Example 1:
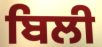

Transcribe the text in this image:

ਬਿਲੀ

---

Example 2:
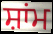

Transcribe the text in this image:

ਸ਼ਾਂਮ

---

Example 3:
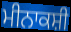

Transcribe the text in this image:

ਮੀਨਾਕਸ਼ੀ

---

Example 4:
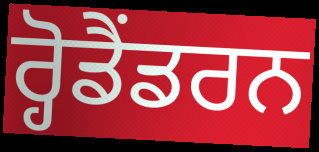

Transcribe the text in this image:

ਰ੍ਹੋਡੈਂਡਰਨ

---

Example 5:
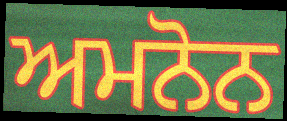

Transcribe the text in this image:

ਅਮਨੋਨ